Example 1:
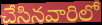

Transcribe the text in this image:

చేసినవారిలో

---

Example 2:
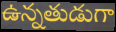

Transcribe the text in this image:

ఉన్నతుడుగా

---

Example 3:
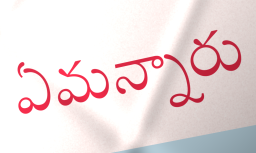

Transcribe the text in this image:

ఏమన్నారు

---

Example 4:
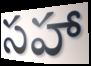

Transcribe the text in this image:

సహా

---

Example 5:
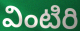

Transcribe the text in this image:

వింటిరి